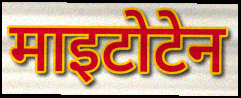
माइटोटेन